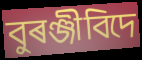
বুৰঞ্জীবিদে